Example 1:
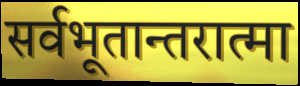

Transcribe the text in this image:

सर्वभूतान्तरात्मा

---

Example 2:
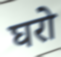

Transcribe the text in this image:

घरो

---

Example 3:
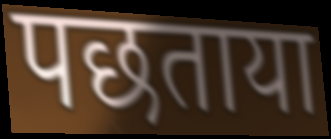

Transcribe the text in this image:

पछताया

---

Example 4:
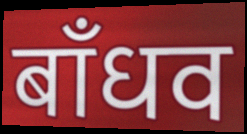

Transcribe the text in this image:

बाँधव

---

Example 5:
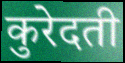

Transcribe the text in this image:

कुरेदती